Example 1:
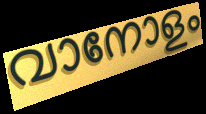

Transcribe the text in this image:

വാനോളം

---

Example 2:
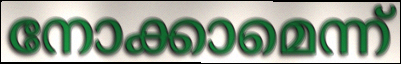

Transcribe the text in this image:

നോക്കാമെന്ന്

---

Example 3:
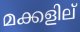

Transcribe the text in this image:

മക്കളില്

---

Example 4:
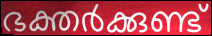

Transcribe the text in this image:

ഭക്തർക്കുണ്ട്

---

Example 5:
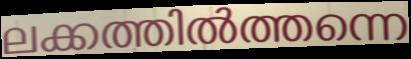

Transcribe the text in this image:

ലക്കത്തിൽത്തന്നെ